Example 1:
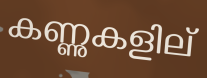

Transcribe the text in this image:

കണ്ണുകളില്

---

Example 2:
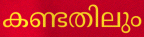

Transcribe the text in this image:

കണ്ടതിലും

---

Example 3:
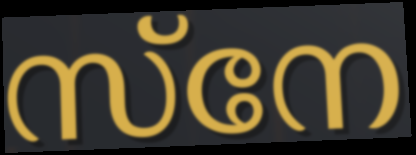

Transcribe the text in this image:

സ്നേ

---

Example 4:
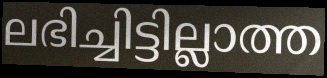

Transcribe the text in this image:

ലഭിച്ചിട്ടില്ലാത്ത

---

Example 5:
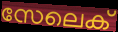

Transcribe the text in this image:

സേലെക്